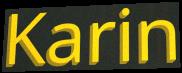
Karin